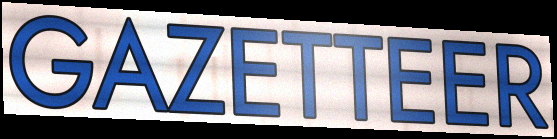
GAZETTEER